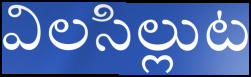
విలసిల్లుట